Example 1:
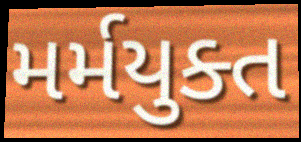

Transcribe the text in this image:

મર્મયુક્ત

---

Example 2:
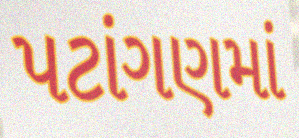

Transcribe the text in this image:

પટાંગણમાં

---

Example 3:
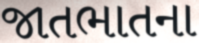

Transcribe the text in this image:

જાતભાતના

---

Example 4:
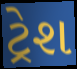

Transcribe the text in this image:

ટ્રેશ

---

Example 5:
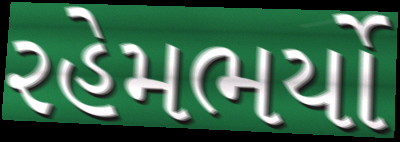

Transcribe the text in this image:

રહેમભર્યો